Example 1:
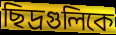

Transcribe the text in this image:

ছিদ্রগুলিকে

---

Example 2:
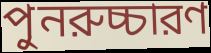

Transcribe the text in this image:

পুনরুচ্চারণ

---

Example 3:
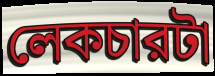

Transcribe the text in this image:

লেকচারটা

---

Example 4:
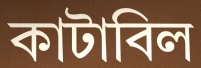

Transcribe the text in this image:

কাটাবিল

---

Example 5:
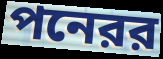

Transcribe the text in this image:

পনেরর